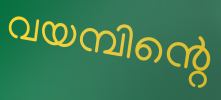
വയമ്പിന്റെ